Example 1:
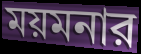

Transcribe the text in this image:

ময়মনার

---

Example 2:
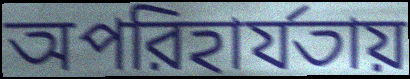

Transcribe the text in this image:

অপরিহার্যতায়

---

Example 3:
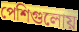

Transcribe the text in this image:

পেশিগুলোয়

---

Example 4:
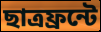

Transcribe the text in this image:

ছাত্রফ্রন্টে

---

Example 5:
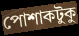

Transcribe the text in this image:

পোশাকটুকু